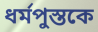
ধর্মপুস্তকে